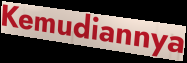
Kemudiannya